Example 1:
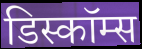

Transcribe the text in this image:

डिस्कॉम्स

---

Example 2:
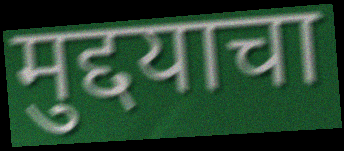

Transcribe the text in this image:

मुद्दयाचा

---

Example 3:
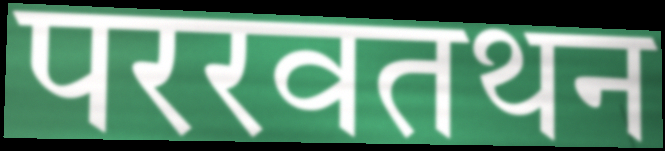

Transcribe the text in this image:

पररवतथन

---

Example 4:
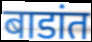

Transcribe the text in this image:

बाडांत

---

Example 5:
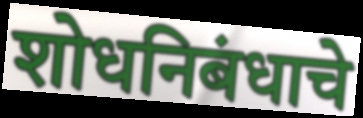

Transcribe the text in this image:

शोधनिबंधाचे